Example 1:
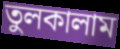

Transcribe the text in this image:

তুলকালাম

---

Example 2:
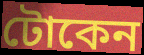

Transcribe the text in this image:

টোকেন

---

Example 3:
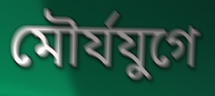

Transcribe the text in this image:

মৌর্যযুগে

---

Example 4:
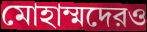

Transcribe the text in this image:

মোহাম্মদেরও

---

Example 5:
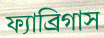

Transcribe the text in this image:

ফ্যাব্রিগাস